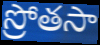
స్రోతసా